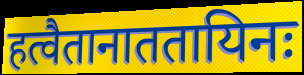
हत्वैतानाततायिनः